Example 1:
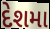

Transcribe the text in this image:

દેશમા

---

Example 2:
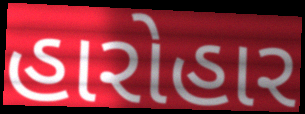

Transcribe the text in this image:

હારોહાર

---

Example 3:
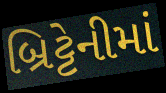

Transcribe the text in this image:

બ્રિટ્ટેનીમાં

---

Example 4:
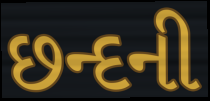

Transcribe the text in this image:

છન્દની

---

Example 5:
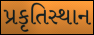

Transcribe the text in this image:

પ્રકૃતિસ્થાન